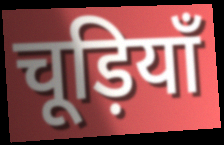
चूड़ियाँ